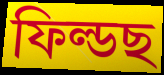
ফিল্ডছ